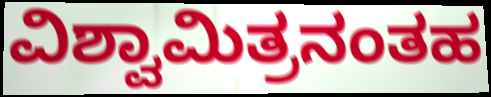
ವಿಶ್ವಾಮಿತ್ರನಂತಹ